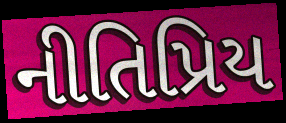
નીતિપ્રિય